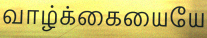
வாழ்க்கையையே